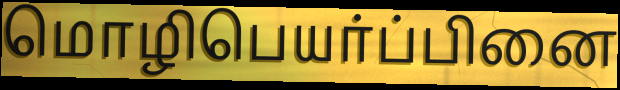
மொழிபெயர்ப்பினை